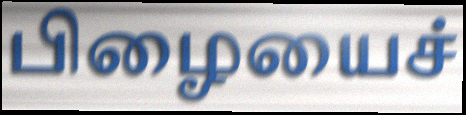
பிழையைச்